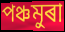
পঞ্চমুৰা